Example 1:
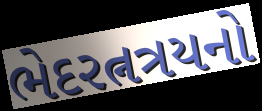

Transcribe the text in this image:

ભેદરત્નત્રયનો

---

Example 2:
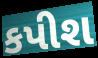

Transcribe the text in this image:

કપીશ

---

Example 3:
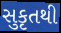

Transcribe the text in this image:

સુકૃતથી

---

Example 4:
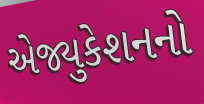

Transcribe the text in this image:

એજ્યુકેશનનો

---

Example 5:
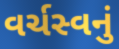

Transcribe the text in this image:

વર્ચસ્વનું